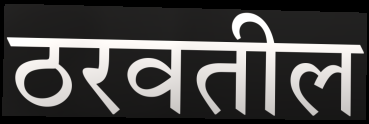
ठरवतील